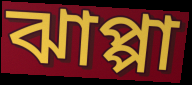
ঝাপ্পা